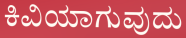
ಕಿವಿಯಾಗುವುದು